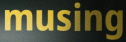
musing